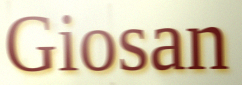
Giosan